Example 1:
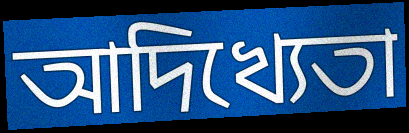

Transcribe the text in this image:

আদিখ্যেতা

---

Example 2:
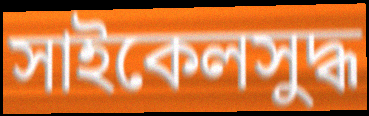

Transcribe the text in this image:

সাইকেলসুদ্ধ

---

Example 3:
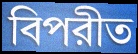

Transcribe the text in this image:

বিপরীত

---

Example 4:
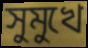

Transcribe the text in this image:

সুমুখে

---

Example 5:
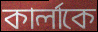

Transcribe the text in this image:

কার্লাকে